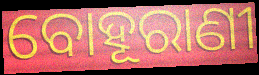
ବୋହୂରାଣୀ